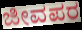
ಜೀವಪರ